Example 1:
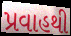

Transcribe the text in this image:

પ્રવાહથી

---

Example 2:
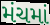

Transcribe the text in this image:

મંચમાં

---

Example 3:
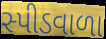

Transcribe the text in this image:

સ્પીડવાળા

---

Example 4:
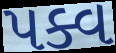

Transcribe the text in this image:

પક્વ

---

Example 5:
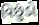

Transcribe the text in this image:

વિછુંડો